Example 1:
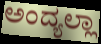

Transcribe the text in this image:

ಅಂದ್ಯಲ್ಲಾ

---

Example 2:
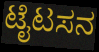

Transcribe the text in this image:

ಟೈಟಸನ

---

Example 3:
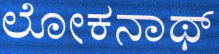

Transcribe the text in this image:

ಲೋಕನಾಥ್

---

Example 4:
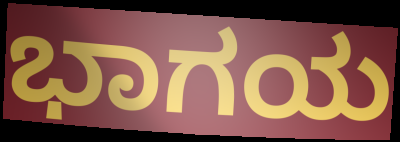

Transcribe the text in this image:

ಭಾಗಯ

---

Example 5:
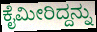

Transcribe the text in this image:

ಕೈಮೀರಿದ್ದನ್ನು